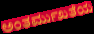
ಅಂತರ್ಮುಖತೆಯ